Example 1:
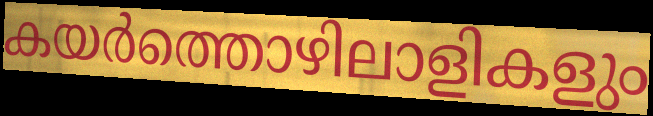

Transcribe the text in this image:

കയർത്തൊഴിലാളികളും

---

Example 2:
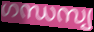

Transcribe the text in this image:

ഗന്ധസ്യ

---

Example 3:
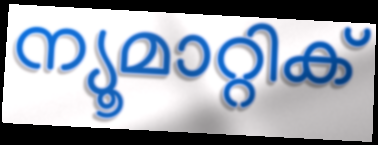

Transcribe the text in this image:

ന്യൂമാറ്റിക്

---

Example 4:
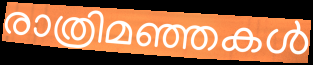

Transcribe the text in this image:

രാത്രിമഞ്ഞകൾ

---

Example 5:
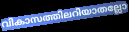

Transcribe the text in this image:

വികാസത്തിലറിയാതല്ലോ